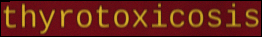
thyrotoxicosis